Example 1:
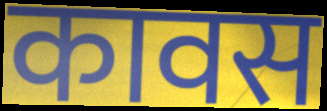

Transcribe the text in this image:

कावस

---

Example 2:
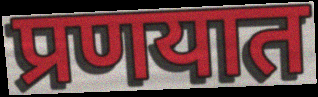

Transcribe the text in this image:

प्रणयात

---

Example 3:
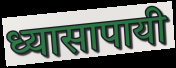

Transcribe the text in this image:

ध्यासापायी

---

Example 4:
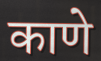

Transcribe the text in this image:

काणे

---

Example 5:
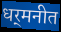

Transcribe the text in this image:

धर्मनीत